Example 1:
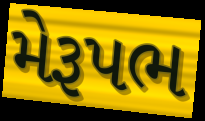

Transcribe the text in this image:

મેરૂપભ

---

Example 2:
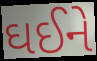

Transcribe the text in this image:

ઘઈને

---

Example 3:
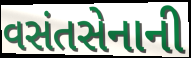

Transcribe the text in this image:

વસંતસેનાની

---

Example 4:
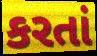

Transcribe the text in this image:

કરતાં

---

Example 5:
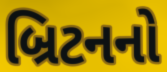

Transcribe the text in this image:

બ્રિટનનો